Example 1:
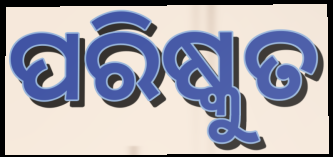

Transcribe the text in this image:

ପରିଷ୍କୁତ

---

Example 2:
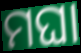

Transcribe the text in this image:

ମଘା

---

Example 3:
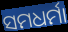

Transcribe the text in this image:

ସମଧର୍ମା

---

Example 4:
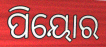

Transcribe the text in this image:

ପିୟୋର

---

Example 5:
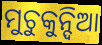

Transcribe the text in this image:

ମୁଚୁକୁନ୍ଦିଆ